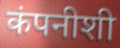
कंपनीशी